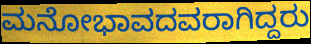
ಮನೋಭಾವದವರಾಗಿದ್ದರು